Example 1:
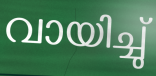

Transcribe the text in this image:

വായിച്ചു്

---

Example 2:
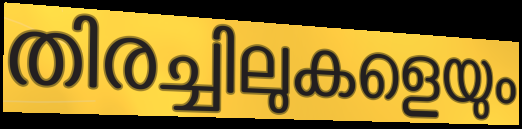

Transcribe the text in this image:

തിരച്ചിലുകളെയും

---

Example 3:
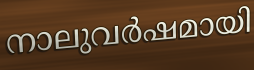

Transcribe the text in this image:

നാലുവർഷമായി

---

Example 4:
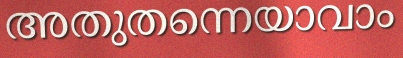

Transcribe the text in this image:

അതുതന്നെയാവാം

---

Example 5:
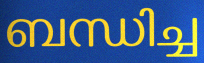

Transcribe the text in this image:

ബന്ധിച്ച